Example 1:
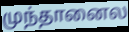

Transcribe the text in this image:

முந்தானைல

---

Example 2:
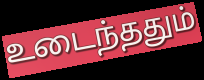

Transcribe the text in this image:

உடைந்ததும்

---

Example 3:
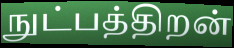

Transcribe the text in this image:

நுட்பத்திறன்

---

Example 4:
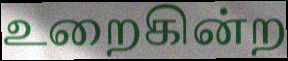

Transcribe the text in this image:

உறைகின்ற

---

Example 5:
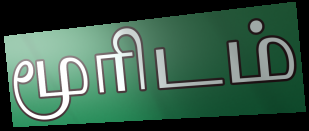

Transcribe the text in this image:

மூரிடம்